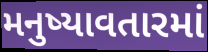
મનુષ્યાવતારમાં